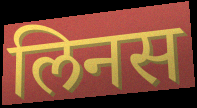
लिनस